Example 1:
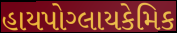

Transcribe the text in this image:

હાયપોગ્લાયકેમિક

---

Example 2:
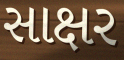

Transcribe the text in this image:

સાક્ષર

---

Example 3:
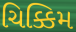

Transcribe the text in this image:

ચિક્કિમ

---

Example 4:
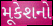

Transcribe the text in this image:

મૂકેશનો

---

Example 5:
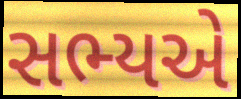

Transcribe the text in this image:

સભ્યએ